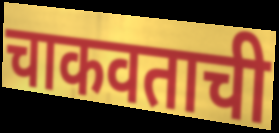
चाकवताची